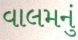
વાલમનું